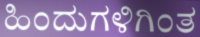
ಹಿಂದುಗಳಿಗಿಂತ